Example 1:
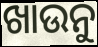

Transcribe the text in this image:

ଖାଉନୁ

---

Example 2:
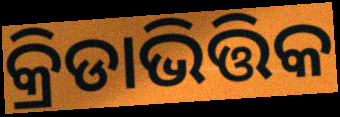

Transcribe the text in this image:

କ୍ରିଡାଭିତ୍ତିକ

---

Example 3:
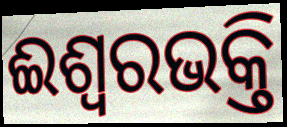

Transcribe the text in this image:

ଈଶ୍ୱରଭକ୍ତି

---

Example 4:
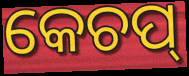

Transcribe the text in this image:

କେଚପ୍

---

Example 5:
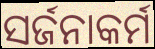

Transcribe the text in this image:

ସର୍ଜନାକର୍ମ